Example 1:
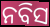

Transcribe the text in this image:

ନବିସ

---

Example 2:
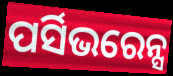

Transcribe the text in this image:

ପର୍ସିଭରେନ୍ସ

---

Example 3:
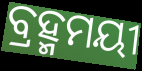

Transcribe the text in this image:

ବ୍ରହ୍ମମୟୀ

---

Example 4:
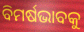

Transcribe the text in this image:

ବିମର୍ଷଭାବକୁ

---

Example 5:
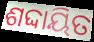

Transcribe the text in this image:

ଶଦ୍ଦାୟିତ